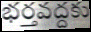
భర్తవద్దకు